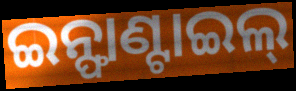
ଇନ୍ଫାଣ୍ଟାଇଲ୍